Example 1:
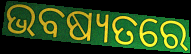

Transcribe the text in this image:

ଭବଷ୍ୟତରେ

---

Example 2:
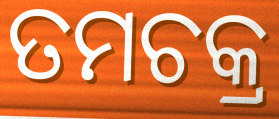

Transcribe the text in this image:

ତମଚକ୍ର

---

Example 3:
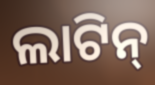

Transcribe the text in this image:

ଲାଟିନ୍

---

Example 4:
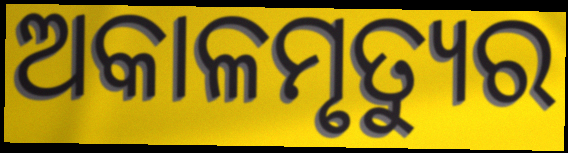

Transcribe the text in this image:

ଅକାଳମୃତ୍ୟୁର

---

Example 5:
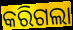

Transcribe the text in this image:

କରିଗଲା